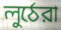
লুঠেরা